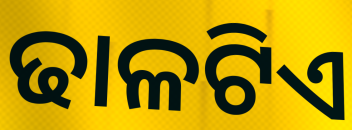
ଢାଳଟିଏ